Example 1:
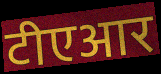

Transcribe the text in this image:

टीएआर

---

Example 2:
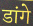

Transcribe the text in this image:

डांगे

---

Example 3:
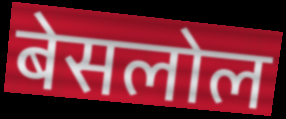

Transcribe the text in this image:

बेसलोल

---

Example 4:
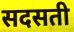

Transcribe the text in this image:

सदसती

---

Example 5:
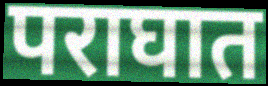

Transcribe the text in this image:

पराघात